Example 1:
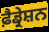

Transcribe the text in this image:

ਫ਼ੈਡ੍ਰੇਸ਼ਨ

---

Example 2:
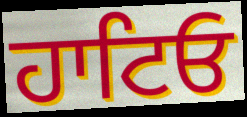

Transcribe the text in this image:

ਹਾਟਿਓ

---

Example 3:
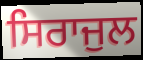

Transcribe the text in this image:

ਸਿਰਾਜੁਲ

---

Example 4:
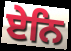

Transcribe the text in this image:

ਏਨਿ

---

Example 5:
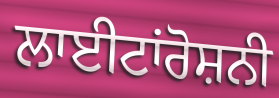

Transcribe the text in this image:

ਲਾਈਟਾਂਰੋਸ਼ਨੀ